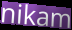
nikam